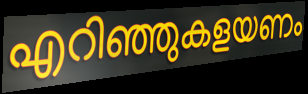
എറിഞ്ഞുകളയണം